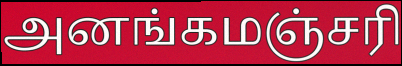
அனங்கமஞ்சரி